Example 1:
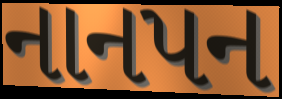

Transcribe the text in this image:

નાનપન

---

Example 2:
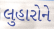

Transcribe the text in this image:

લુહારોને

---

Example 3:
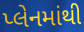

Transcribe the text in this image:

પ્લેનમાંથી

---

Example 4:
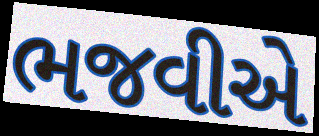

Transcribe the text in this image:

ભજવીએ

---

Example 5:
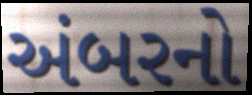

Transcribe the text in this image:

અંબરનો